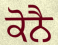
ਕੋਨੈ